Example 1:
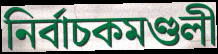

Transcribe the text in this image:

নিৰ্বাচকমণ্ডলী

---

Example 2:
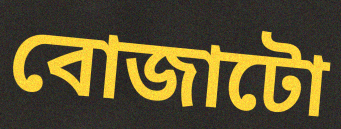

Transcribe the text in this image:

বোজাটো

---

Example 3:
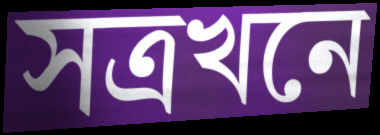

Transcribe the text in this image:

সত্ৰখনে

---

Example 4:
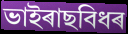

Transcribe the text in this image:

ভাইৰাছবিধৰ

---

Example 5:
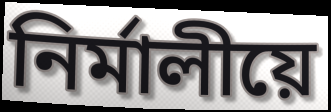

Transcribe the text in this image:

নিৰ্মালীয়ে